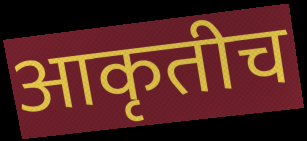
आकृतीच